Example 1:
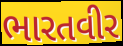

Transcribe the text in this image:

ભારતવીર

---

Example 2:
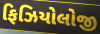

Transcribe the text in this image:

ફિઝિયોલોજી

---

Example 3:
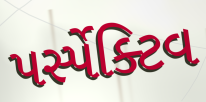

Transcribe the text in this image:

પર્સ્પેક્ટિવ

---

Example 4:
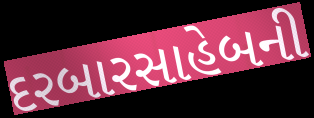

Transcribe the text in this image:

દરબારસાહેબની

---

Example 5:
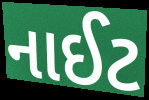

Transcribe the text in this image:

નાઈટ